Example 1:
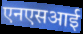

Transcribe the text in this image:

एनएसआई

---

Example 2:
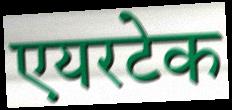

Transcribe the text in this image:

एयरटेक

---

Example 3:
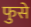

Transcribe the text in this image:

फुसे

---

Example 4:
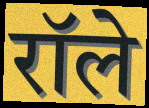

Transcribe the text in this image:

रॉले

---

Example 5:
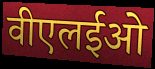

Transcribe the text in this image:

वीएलईओ